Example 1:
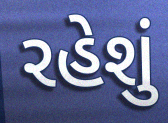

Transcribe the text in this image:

રહેશું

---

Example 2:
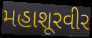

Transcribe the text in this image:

મહાશૂરવીર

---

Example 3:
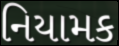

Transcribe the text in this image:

નિયામક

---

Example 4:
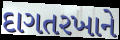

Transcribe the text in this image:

દાગતરખાને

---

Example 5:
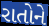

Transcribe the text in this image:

રાતોને